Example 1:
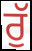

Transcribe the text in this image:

ਰੁੱ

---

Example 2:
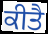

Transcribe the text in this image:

ਕੀਤੈ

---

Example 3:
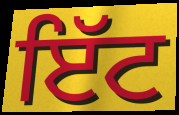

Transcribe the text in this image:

ਇੱਟ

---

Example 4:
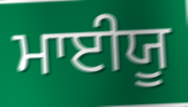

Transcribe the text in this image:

ਮਾਈਯੂ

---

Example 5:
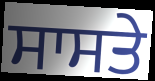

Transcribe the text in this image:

ਸਾਸਤੇ